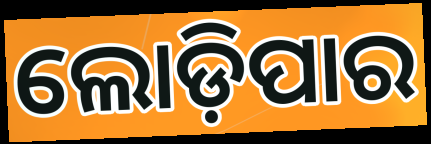
ଲୋଡ଼ିପାର